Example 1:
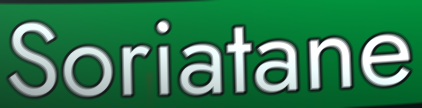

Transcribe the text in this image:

Soriatane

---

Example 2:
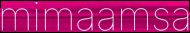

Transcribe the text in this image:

mimaamsa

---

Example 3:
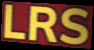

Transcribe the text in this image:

LRS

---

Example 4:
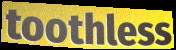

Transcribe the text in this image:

toothless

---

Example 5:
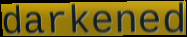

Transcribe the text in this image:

darkened